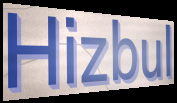
Hizbul